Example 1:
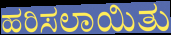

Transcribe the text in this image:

ಹರಿಸಲಾಯಿತು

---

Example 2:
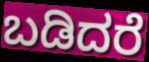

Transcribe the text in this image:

ಬಡಿದರೆ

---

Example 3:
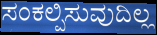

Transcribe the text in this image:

ಸಂಕಲ್ಪಿಸುವುದಿಲ್ಲ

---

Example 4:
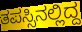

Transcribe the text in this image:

ತಪಸ್ಸಿನಲ್ಲಿದ್ದ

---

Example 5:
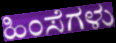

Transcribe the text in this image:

ಹಿಂಸೆಗಳು